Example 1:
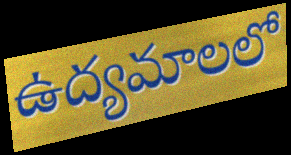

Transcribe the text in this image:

ఉద్యమాలలో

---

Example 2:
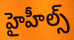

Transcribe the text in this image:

హైహీల్స్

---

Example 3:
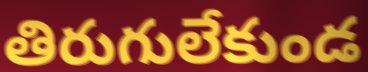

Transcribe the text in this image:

తిరుగులేకుండ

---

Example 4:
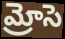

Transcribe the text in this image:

మ్రోసె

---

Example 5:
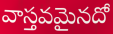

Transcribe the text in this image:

వాస్తవమైనదో